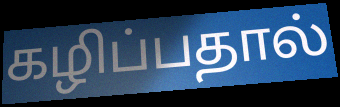
கழிப்பதால்